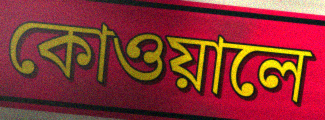
কোওয়ালে